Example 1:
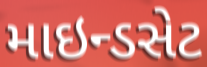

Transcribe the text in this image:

માઇન્ડસેટ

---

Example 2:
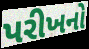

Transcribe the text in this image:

પરીખનો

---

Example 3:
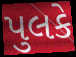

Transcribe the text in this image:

પુલકે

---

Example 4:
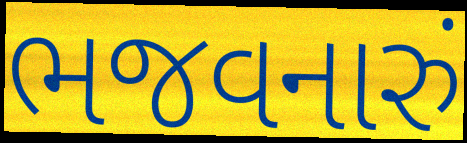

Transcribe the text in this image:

ભજવનારું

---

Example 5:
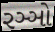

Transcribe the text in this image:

રઞ્ઞો